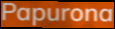
Papurona